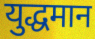
युद्धमान